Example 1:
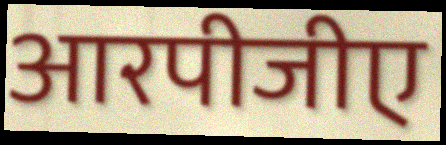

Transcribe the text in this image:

आरपीजीए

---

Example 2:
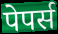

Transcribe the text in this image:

पेपर्स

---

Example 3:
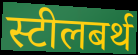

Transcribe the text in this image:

स्टीलबर्थ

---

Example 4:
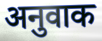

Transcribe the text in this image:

अनुवाक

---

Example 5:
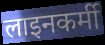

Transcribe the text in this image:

लाइनकर्मी